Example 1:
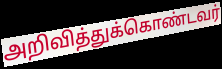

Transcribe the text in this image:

அறிவித்துக்கொண்டவர்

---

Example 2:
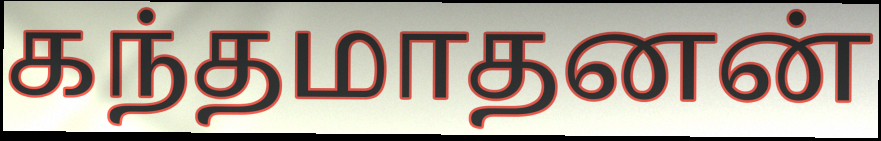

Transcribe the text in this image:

கந்தமாதனன்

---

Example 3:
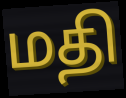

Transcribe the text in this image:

மதி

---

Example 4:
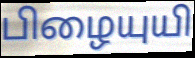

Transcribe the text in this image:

பிழையுயி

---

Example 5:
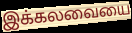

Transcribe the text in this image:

இக்கலவையை